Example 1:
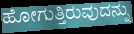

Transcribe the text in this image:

ಹೋಗುತ್ತಿರುವುದನ್ನು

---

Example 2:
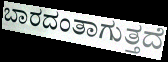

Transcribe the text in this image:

ಬಾರದಂತಾಗುತ್ತದೆ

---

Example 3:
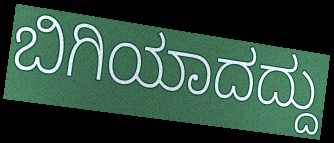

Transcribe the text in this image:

ಬಿಗಿಯಾದದ್ದು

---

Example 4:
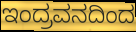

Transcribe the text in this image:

ಇಂದ್ರವನದಿಂದ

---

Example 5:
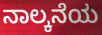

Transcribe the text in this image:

ನಾಲ್ಕನೆಯ